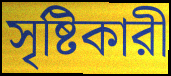
সৃষ্টিকারী